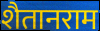
शैतानराम